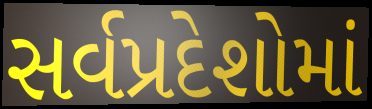
સર્વપ્રદેશોમાં